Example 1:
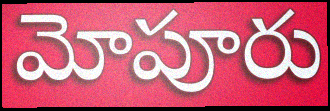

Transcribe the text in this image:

మోపూరు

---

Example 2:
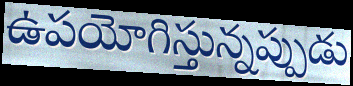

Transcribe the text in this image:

ఉపయోగిస్తున్నప్పుడు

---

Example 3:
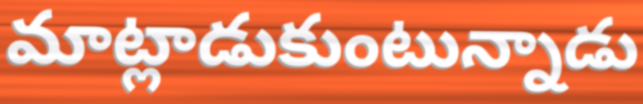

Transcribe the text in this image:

మాట్లాడుకుంటున్నాడు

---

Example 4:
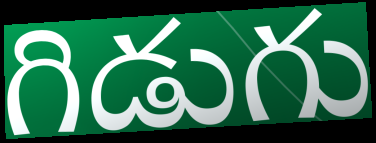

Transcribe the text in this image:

గిడుగు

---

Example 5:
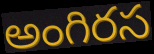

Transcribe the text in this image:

అంగిరస